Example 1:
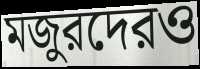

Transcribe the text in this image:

মজুরদেরও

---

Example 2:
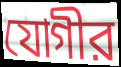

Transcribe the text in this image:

যোগীর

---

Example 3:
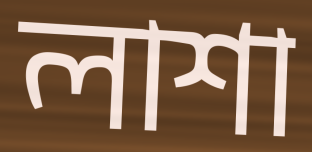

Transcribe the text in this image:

লাশা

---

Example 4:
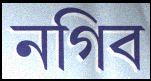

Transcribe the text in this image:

নগিব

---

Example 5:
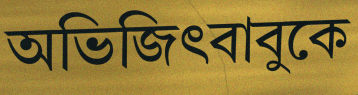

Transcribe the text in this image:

অভিজিৎবাবুকে